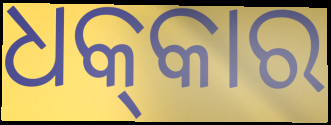
ଧକ୍‍କାର